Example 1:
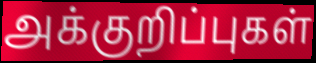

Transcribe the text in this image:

அக்குறிப்புகள்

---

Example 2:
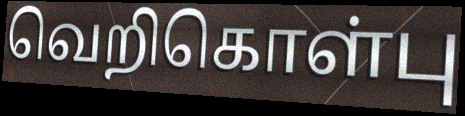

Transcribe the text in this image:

வெறிகொள்பு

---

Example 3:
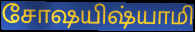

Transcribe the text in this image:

சோஷயிஷ்யாமி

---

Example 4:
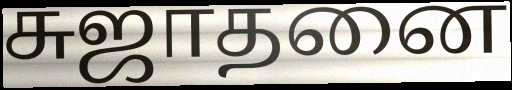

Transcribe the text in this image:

சுஜாதனை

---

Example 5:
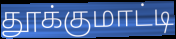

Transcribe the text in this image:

தூக்குமாட்டி